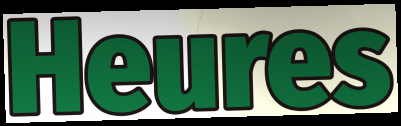
Heures